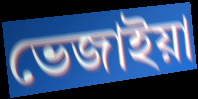
ভেজাইয়া